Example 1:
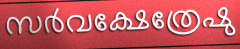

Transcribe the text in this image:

സർവക്ഷേത്രേഷു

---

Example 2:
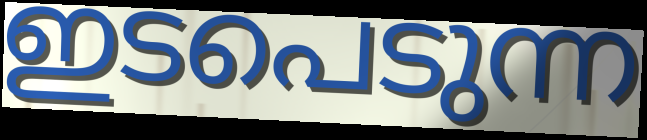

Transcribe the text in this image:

ഇടപെടുന്ന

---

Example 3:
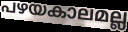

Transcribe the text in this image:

പഴയകാലമല്ല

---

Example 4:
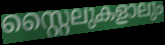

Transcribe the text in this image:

സ്റ്റൈലുകളാലും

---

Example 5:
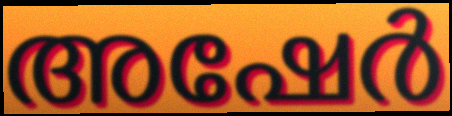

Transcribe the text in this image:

അഷേർ